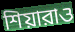
শিয়ারাও